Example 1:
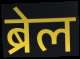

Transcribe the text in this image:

ब्रेल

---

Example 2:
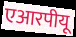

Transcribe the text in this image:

एआरपीयू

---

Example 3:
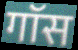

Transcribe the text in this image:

गॉस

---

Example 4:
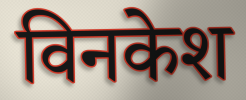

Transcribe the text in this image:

विनकेश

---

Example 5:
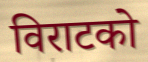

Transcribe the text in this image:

विराटको